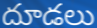
దూడలు